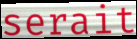
serait